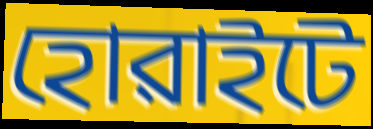
হোৱাইটে